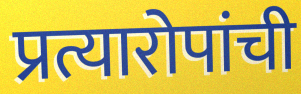
प्रत्यारोपांची